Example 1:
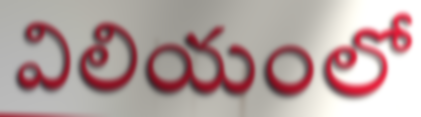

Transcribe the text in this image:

విలియంలో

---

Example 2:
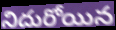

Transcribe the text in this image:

నిదురోయిన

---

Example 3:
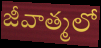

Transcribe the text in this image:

జీవాత్మలో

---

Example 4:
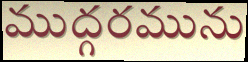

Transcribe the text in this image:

ముద్గరమును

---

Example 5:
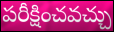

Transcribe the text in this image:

పరీక్షించవచ్చు